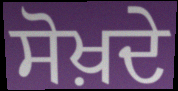
ਸੋਖ਼ਦੇ